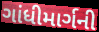
ગાંધીમાર્ગની